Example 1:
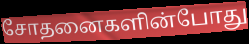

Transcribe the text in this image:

சோதனைகளின்போது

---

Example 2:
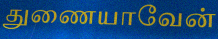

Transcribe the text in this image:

துணையாவேன்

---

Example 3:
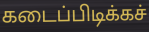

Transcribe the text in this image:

கடைப்பிடிக்கச்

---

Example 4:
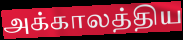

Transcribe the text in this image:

அக்காலத்திய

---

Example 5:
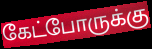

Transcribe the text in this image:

கேட்போருக்கு